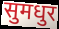
सुमधुर